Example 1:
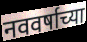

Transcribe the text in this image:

नववर्षाच्या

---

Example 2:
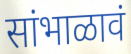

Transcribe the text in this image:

सांभाळावं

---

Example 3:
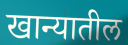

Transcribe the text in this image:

खान्यातील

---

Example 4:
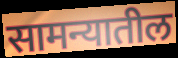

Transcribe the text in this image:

सामन्यातील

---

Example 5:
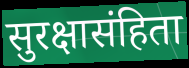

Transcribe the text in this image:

सुरक्षासंहिता